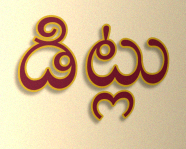
డిట్లు